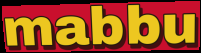
mabbu